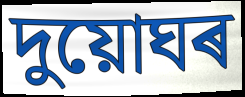
দুয়োঘৰ